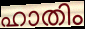
ഹാതിം